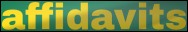
affidavits